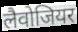
लैवोजियर